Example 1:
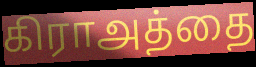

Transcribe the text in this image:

கிராஅத்தை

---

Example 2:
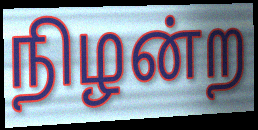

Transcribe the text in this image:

நிழன்ற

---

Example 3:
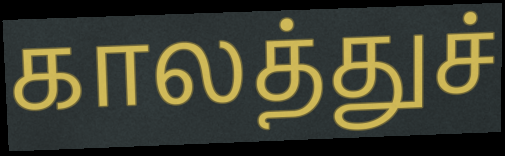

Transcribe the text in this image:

காலத்துச்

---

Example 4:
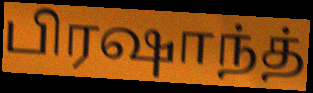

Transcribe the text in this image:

பிரஷாந்த்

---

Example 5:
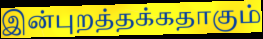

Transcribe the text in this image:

இன்புறத்தக்கதாகும்